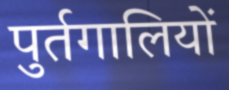
पुर्तगालियों